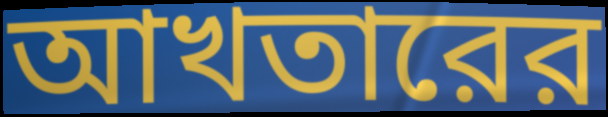
আখতারের